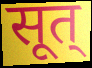
सूत्